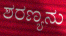
ಶರಣ್ಯನು